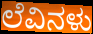
ಲೆವಿನಳು